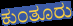
ಕುಂತೂರು